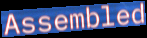
Assembled